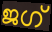
ജഗ്